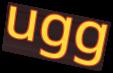
ugg